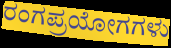
ರಂಗಪ್ರಯೋಗಗಳು